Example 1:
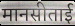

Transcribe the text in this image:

मानसीताई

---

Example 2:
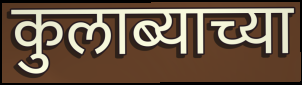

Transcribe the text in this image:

कुलाब्याच्या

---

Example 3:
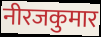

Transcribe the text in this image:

नीरजकुमार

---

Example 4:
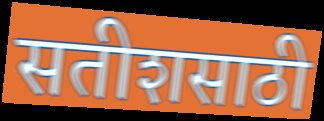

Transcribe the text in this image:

सतीशसाठी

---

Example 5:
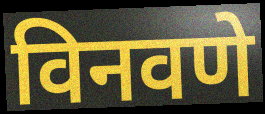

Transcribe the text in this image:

विनवणे